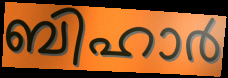
ബിഹാർ